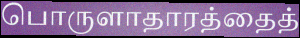
பொருளாதாரத்தைத்